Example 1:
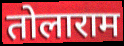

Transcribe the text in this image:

तोलाराम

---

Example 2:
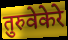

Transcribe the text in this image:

तुरुवेकेरे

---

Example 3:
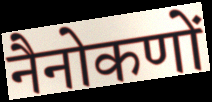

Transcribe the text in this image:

नैनोकणों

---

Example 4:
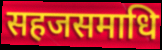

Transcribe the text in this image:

सहजसमाधि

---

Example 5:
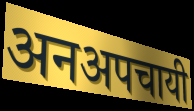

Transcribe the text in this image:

अनअपचायी